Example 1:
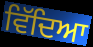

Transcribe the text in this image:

ਵਿੱਦਿਆ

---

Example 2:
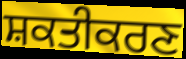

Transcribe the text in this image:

ਸ਼ਕਤੀਕਰਣ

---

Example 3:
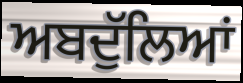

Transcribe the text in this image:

ਅਬਦੁੱਲਿਆਂ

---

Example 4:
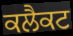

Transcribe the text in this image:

ਕਲੈਕਟ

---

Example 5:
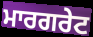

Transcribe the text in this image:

ਮਾਰਗਰੇਟ